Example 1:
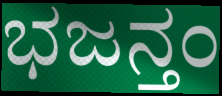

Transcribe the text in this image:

ಭಜನ್ತಂ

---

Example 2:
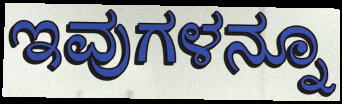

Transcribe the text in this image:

ಇವುಗಳನ್ನೂ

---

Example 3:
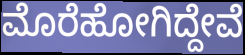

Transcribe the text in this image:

ಮೊರೆಹೋಗಿದ್ದೇವೆ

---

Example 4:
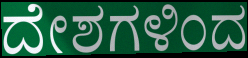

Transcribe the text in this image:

ದೇಶಗಳಿಂದ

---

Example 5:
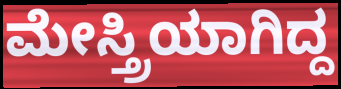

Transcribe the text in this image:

ಮೇಸ್ತ್ರಿಯಾಗಿದ್ದ